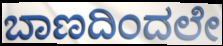
ಬಾಣದಿಂದಲೇ